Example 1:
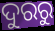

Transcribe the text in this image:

ଦୁରରୁ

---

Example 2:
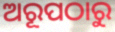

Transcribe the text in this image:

ଅରୂପଠାରୁ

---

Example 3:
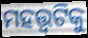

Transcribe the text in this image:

ମହତ୍ତ୍ୱଟିକୁ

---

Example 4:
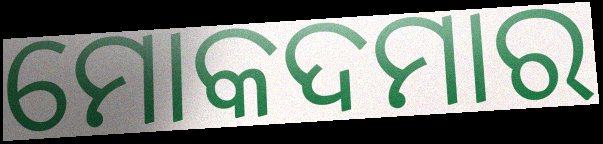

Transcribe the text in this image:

ମୋକଦମାର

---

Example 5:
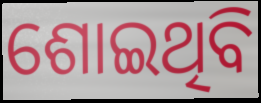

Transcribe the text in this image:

ଶୋଇଥିବି